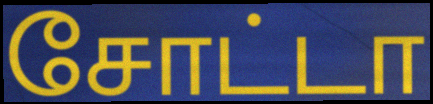
சோட்டா